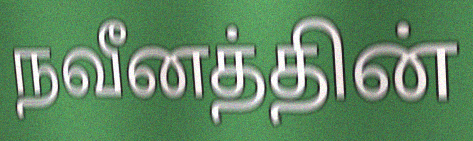
நவீனத்தின்